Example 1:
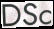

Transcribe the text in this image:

DSc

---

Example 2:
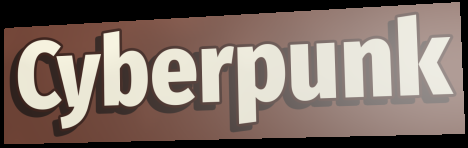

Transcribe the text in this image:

Cyberpunk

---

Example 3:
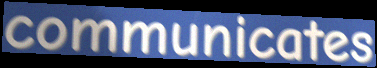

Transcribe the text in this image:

communicates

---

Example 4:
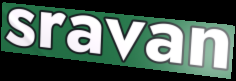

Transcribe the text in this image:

sravan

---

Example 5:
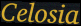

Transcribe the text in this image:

Celosia